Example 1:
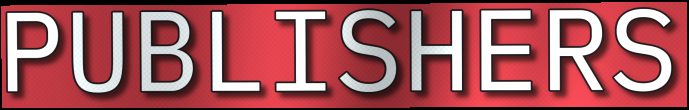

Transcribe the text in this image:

PUBLISHERS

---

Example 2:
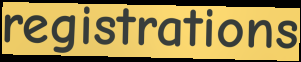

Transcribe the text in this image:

registrations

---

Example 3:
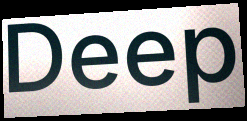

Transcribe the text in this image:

Deep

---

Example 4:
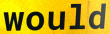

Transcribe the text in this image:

would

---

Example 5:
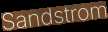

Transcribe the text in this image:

Sandstrom